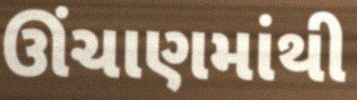
ઊંચાણમાંથી